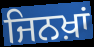
ਜਿਨਖ਼ਾਂ